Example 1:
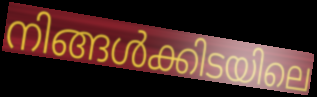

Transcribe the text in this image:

നിങ്ങൾക്കിടയിലെ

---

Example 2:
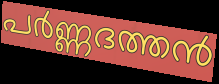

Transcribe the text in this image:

പർണ്ണദത്തൻ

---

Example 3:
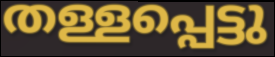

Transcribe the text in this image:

തള്ളപ്പെട്ടു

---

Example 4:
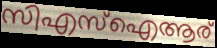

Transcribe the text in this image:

സിഎസ്ഐആര്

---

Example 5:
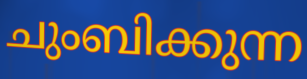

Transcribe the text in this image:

ചുംബിക്കുന്ന